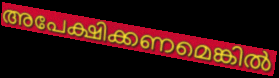
അപേക്ഷിക്കണമെങ്കിൽ